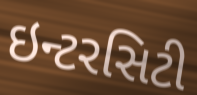
ઇન્ટરસિટી